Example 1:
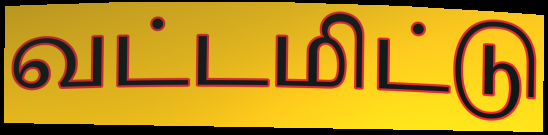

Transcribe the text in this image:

வட்டமிட்டு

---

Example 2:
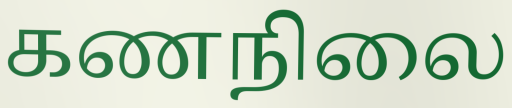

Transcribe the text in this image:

கணநிலை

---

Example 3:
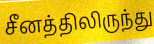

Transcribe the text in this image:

சீனத்திலிருந்து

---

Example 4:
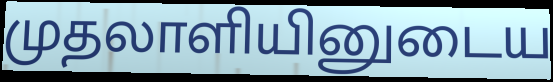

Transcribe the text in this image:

முதலாளியினுடைய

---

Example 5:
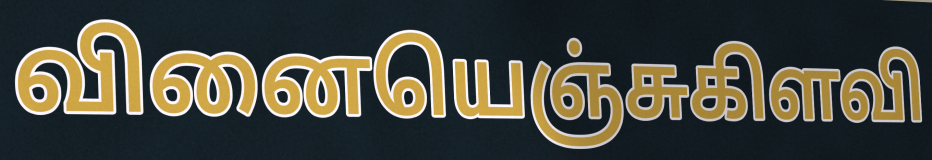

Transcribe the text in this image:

வினையெஞ்சுகிளவி